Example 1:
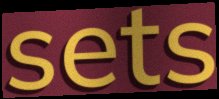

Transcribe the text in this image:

sets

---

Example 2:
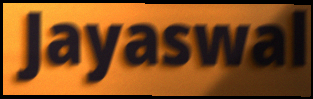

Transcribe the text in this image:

Jayaswal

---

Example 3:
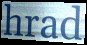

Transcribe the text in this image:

hrad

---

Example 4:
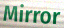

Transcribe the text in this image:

Mirror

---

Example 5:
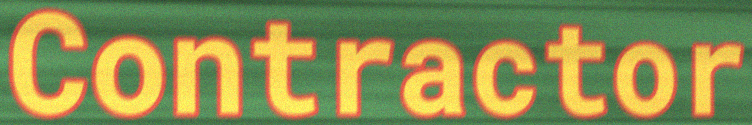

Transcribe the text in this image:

Contractor